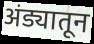
अंड्यातून